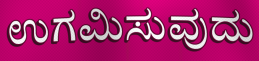
ಉಗಮಿಸುವುದು